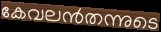
കേവലൻതന്നുടെ